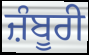
ਜ਼ੰਬੂਰੀ